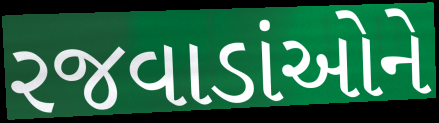
રજવાડાંઓને